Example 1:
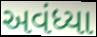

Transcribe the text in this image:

અવંધ્યા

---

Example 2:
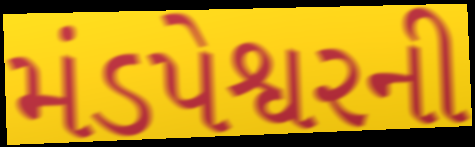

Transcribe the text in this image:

મંડપેશ્વરની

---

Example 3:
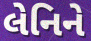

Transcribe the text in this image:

લેનિને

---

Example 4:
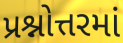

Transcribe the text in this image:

પ્રશ્નોત્તરમાં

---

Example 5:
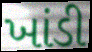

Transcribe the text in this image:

ખાંડી